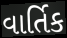
વાર્તિક